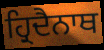
ਹ੍ਰਿਦੈਨਾਥ